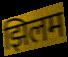
झिलम